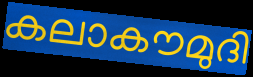
കലാകൗമുദി